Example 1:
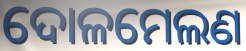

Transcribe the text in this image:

ଦୋଳମେଲଣ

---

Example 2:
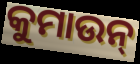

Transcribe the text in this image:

କୁମାଉନ୍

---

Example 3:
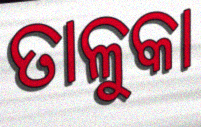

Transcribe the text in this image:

ତାଳୁକା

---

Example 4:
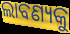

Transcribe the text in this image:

ଲାବଣ୍ୟକୁ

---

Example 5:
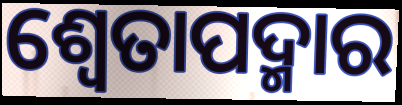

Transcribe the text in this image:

ଶ୍ଵେତାପଦ୍ମାର